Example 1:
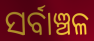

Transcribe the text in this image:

ସର୍ବାଞ୍ଚଳ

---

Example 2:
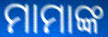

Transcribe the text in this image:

ମାମାଙ୍କ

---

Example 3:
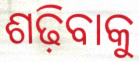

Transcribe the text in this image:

ଶଢ଼ିବାକୁ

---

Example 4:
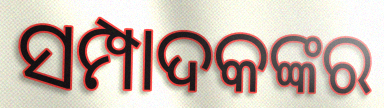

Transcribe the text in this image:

ସମ୍ପାଦକଙ୍କର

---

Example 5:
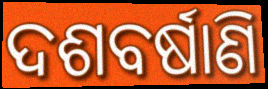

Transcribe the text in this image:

ଦଶବର୍ଷାଣି